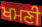
ਖਮਣੀ